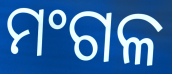
ମଂଗଳ